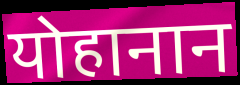
योहानान